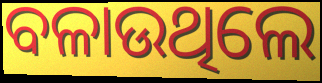
ବଳାଉଥିଲେ